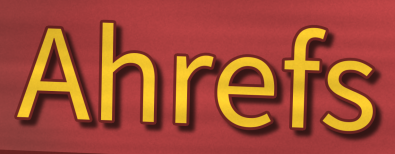
Ahrefs